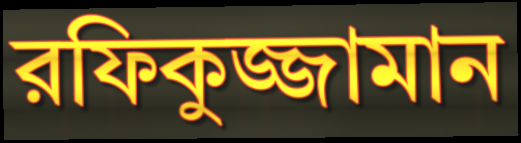
রফিকুজ্জামান